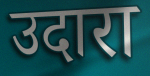
उदारा